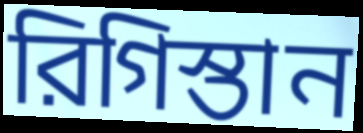
রিগিস্তান